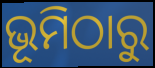
ଭୂମିଠାରୁ